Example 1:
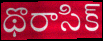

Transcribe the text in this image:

థొరాసిక్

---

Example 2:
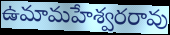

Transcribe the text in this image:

ఉమామహేశ్వరరావు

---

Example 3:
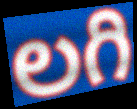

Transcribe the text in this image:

లగి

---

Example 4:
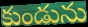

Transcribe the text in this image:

కుండును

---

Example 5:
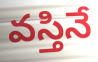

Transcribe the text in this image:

వస్తినే